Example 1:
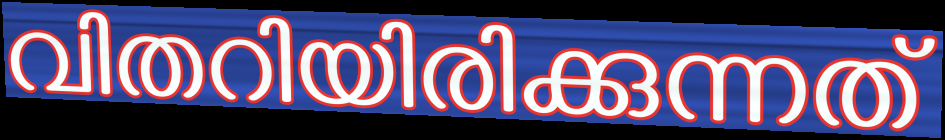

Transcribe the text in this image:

വിതറിയിരിക്കുന്നത്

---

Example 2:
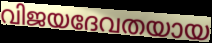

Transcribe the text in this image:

വിജയദേവതയായ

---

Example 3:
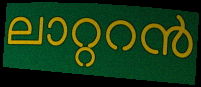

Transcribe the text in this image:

ലാറ്ററൻ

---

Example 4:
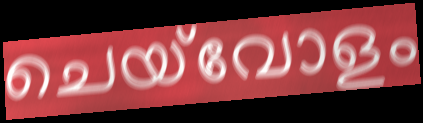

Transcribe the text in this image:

ചെയ്‌വോളം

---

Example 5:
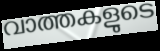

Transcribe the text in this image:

വാത്തകളുടെ